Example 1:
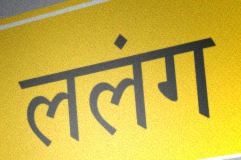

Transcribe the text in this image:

ललंग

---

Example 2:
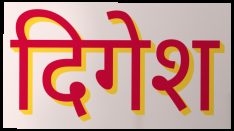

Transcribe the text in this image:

दिगेश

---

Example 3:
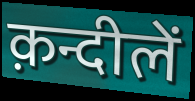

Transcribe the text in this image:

क़न्दीलें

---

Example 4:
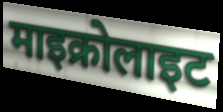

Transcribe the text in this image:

माइक्रोलाइट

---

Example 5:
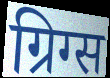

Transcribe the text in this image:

ग्रिग्स